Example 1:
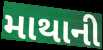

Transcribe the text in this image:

માથાની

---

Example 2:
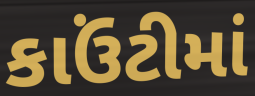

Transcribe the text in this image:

કાઉંટીમાં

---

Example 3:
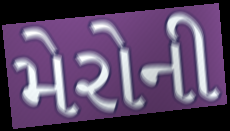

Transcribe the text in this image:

મેરોની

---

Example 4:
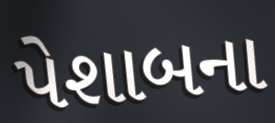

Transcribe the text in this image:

પેશાબના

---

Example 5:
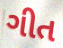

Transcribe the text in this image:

ગીત